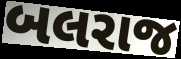
બલરાજ